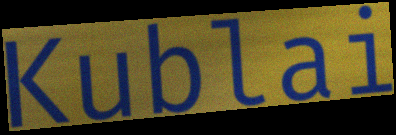
Kublai